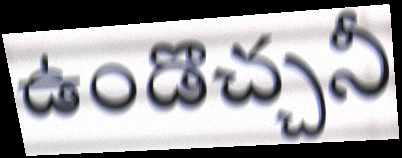
ఉండొచ్చనీ